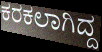
ಕರಕಲಾಗಿದ್ದ